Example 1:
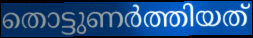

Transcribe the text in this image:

തൊട്ടുണർത്തിയത്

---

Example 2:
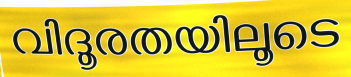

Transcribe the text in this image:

വിദൂരതയിലൂടെ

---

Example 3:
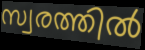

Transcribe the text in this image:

സ്വരത്തിൽ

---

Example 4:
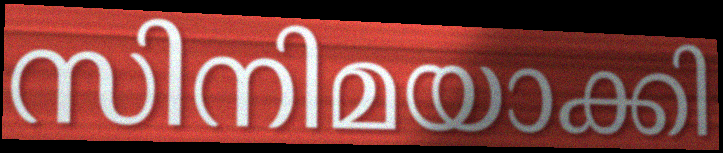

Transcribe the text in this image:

സിനിമയാക്കി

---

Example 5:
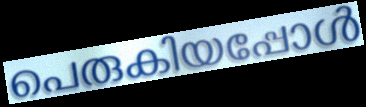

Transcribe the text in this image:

പെരുകിയപ്പോൾ